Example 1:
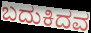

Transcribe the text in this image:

ಬದುಕಿದವ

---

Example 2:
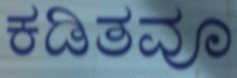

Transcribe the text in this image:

ಕಡಿತವೂ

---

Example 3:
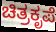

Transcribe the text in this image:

ಚಿತ್ರಕೃಪೆ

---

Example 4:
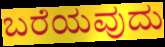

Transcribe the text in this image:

ಬರೆಯವುದು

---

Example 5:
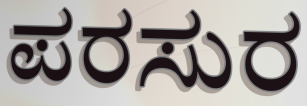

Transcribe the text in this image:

ಪರಸುರ